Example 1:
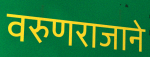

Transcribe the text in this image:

वरुणराजाने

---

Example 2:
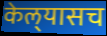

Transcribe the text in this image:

केल्यासच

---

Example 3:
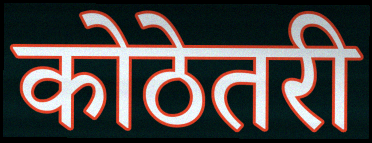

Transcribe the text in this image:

कोठेतरी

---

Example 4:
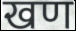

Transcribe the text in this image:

खण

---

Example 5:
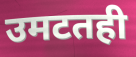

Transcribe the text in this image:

उमटतही